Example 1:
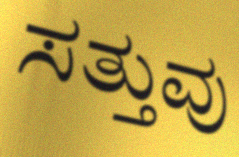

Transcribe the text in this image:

ಸತ್ತುವು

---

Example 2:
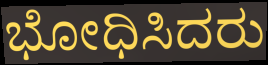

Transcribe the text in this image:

ಭೋಧಿಸಿದರು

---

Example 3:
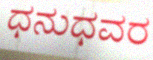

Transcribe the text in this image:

ಧನುಧವರ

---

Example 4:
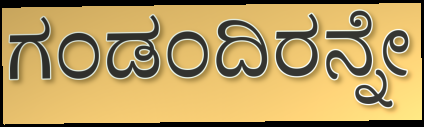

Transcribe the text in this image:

ಗಂಡಂದಿರನ್ನೇ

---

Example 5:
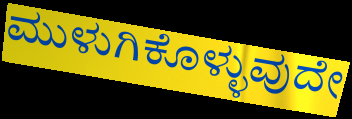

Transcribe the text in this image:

ಮುಳುಗಿಕೊಳ್ಳುವುದೇ